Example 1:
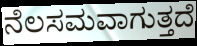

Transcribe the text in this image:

ನೆಲಸಮವಾಗುತ್ತದೆ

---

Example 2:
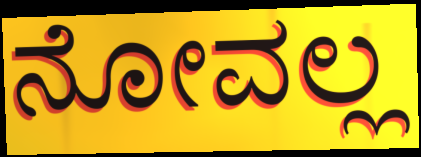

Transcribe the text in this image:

ನೋವಲ್ಲ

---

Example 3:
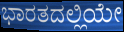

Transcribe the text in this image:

ಭಾರತದಲ್ಲಿಯೇ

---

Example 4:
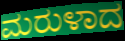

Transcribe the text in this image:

ಮರುಳಾದ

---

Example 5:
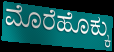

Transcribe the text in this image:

ಮೊರೆಹೊಕ್ಕು